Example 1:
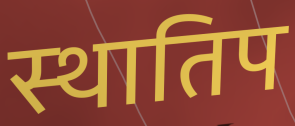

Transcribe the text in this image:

स्थातिप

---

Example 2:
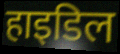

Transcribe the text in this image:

हाइडिल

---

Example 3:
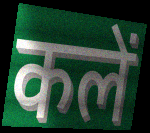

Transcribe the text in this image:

कलें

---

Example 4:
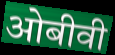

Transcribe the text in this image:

ओबीवी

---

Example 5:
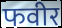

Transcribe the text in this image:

फवीर